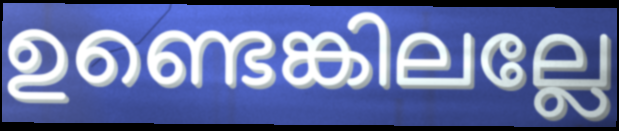
ഉണ്ടെങ്കിലല്ലേ